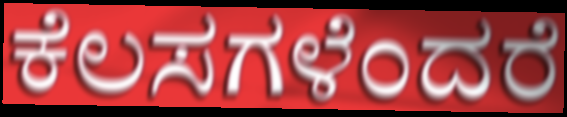
ಕೆಲಸಗಳೆಂದರೆ